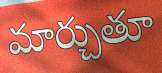
మార్చుతూ